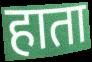
हाता